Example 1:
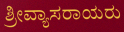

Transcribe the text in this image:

ಶ್ರೀವ್ಯಾಸರಾಯರು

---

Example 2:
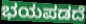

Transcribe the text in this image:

ಭಯಪಡದೆ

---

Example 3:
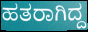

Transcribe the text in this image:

ಹತರಾಗಿದ್ದ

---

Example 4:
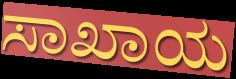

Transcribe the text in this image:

ಸಾಖಾಯ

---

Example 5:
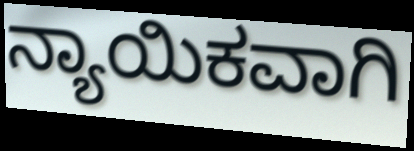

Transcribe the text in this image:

ನ್ಯಾಯಿಕವಾಗಿ